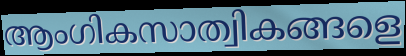
ആംഗികസാത്വികങ്ങളെ